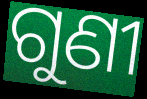
ଗୁଣୀ